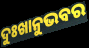
ଦୁଃଖାନୁଭବର